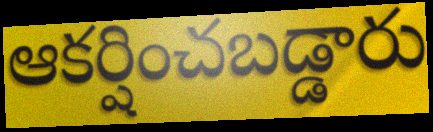
ఆకర్షించబడ్డారు